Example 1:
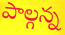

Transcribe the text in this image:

పాల్గన్న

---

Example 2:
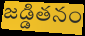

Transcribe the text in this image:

జడ్డితనం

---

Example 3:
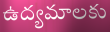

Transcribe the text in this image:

ఉద్యమాలకు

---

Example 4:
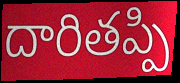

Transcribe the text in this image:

దారితప్పి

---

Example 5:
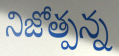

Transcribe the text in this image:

నిజోత్పన్న